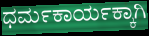
ಧರ್ಮಕಾರ್ಯಕ್ಕಾಗಿ